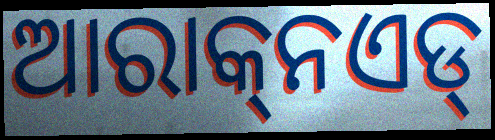
ଆରାକ୍‌ନଏଡ୍